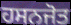
ਹਸਨਜੋਤ